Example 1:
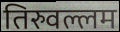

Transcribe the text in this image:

तिरुवल्लम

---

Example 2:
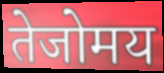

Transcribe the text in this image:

तेजोमय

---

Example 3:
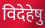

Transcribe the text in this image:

विदेहेषु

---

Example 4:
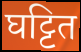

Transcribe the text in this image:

घट्टित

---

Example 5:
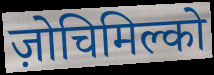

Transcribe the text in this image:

ज़ोचिमिल्को